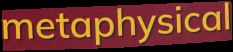
metaphysical